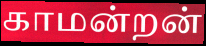
காமன்றன்